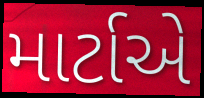
માર્ટાએ